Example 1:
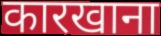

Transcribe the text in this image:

कारखाना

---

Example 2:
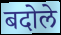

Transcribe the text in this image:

बदोले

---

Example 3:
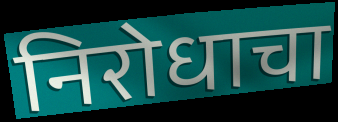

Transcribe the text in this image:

निरोधाचा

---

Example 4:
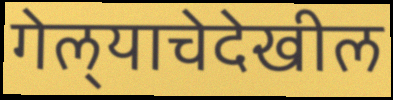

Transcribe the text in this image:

गेल्याचेदेखील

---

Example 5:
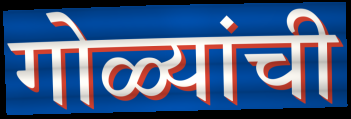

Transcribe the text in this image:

गोळ्यांची